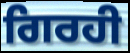
ਗਿਰਹੀ